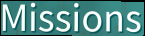
Missions